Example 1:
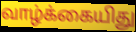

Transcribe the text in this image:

வாழ்க்கையிது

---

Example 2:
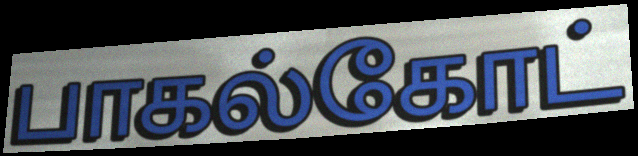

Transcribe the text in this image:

பாகல்கோட்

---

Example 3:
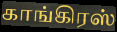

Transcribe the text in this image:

காங்கிரஸ்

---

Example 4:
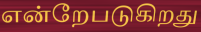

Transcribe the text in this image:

என்றேபடுகிறது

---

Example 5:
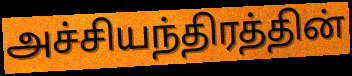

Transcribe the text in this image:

அச்சியந்திரத்தின்